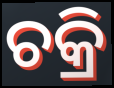
ଚକ୍ରି